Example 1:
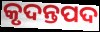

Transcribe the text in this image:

କୃଦନ୍ତପଦ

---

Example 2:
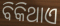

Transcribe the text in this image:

ବିକିଥାଏ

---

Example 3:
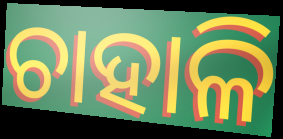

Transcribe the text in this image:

ଚାହାଳି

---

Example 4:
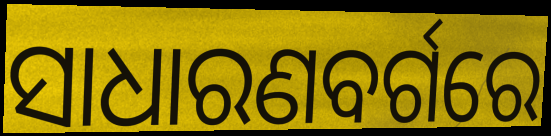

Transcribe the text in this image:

ସାଧାରଣବର୍ଗରେ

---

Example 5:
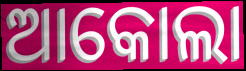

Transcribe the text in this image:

ଆକୋଲା